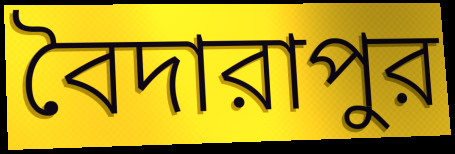
বৈদারাপুর